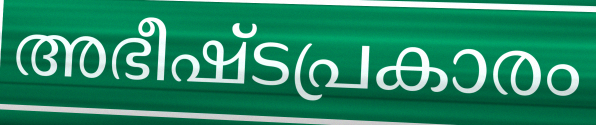
അഭീഷ്ടപ്രകാരം